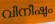
വിനീഷും